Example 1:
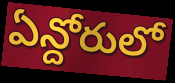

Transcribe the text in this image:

ఏన్దోరులో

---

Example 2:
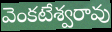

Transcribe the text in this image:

వెంకటేశ్వరావు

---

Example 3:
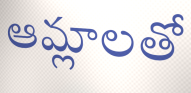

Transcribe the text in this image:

ఆమ్లాలతో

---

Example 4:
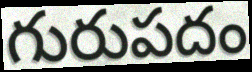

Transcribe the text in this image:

గురుపదం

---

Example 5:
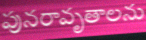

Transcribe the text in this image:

పునరావృతాలను